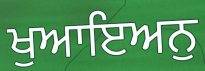
ਖੁਆਇਅਨੁ